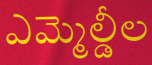
ఎమ్మెల్డీల